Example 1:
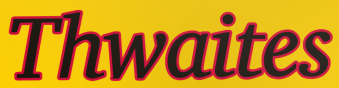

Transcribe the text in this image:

Thwaites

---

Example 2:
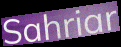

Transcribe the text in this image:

Sahriar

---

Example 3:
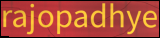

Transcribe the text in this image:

rajopadhye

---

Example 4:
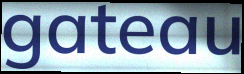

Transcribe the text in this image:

gateau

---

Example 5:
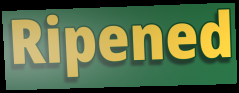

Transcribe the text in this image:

Ripened